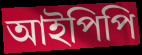
আইপিপি